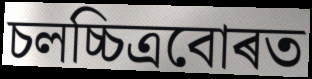
চলচ্চিত্ৰবোৰত